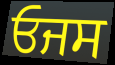
ਓਜਸ